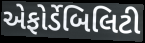
એફોર્ડેબિલિટી